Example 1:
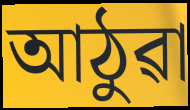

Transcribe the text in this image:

আঠুৱা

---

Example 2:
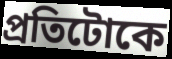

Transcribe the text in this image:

প্ৰতিটোকে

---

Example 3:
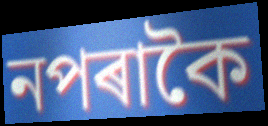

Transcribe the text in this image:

নপৰাকৈ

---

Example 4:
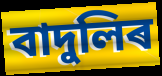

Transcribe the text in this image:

বাদুলিৰ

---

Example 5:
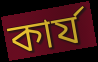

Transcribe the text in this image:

কাৰ্য